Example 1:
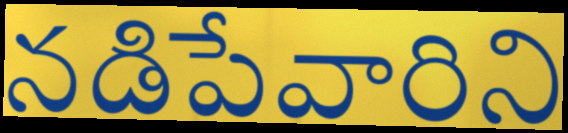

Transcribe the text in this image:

నడిపేవారిని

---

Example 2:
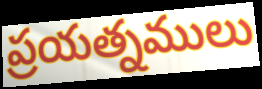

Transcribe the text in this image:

ప్రయత్నములు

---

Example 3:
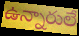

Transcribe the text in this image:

ఉన్నారులే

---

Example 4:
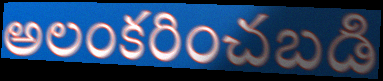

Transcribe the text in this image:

అలంకరించబడి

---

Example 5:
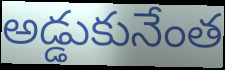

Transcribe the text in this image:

అడ్డుకునేంత